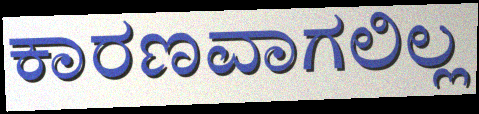
ಕಾರಣವಾಗಲಿಲ್ಲ